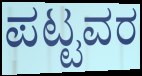
ಪಟ್ಟವರ